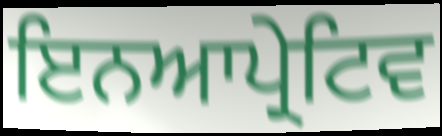
ਇਨਆਪ੍ਰੇਟਿਵ